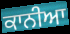
ਕਾਨੀਆ